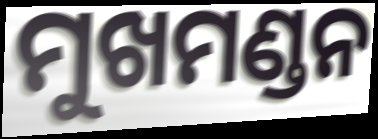
ମୁଖମଣ୍ଡନ